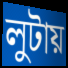
লুটায়